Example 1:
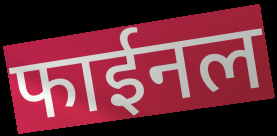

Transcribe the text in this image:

फाईनल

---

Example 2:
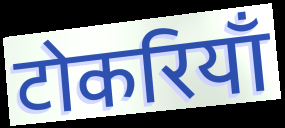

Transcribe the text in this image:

टोकरियाँ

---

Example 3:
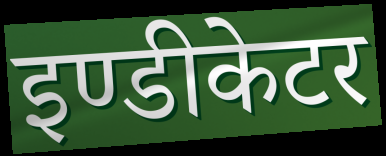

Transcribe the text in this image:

इण्डीकेटर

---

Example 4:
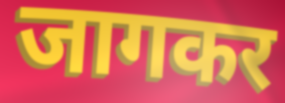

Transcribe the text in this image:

जागकर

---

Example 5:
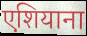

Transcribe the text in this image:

एशियाना